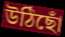
উঠিছোঁ